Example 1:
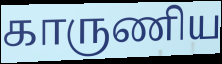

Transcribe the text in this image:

காருணிய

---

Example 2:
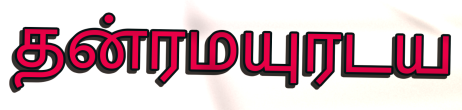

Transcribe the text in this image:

தன்ரமயுரடய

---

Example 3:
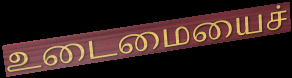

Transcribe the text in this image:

உடைமையைச்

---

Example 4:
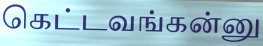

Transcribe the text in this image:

கெட்டவங்கன்னு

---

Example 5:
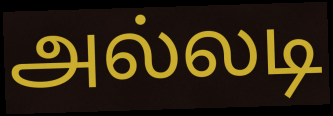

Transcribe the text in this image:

அல்லடி